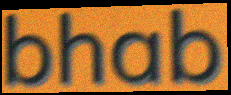
bhab